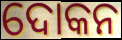
ଦୋକନ